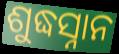
ଶୁଦ୍ଧସ୍ନାନ